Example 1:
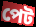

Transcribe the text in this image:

পেট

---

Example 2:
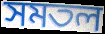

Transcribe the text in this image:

সমতল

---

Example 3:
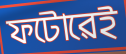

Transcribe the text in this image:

ফটোৱেই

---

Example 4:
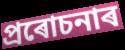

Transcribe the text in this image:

প্ৰৰোচনাৰ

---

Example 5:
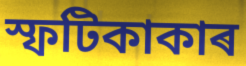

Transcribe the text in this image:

স্ফটিকাকাৰ